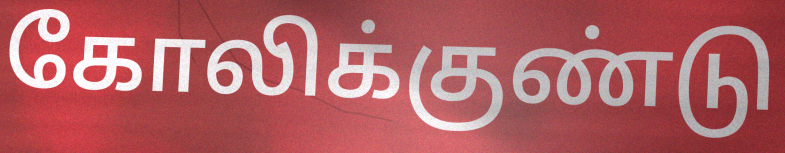
கோலிக்குண்டு